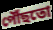
পৌঁছতো